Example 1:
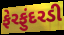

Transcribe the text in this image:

ફેરફુંદરડી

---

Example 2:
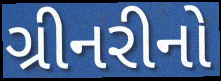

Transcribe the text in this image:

ગ્રીનરીનો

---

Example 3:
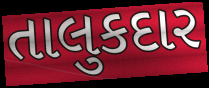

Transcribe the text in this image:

તાલુકદાર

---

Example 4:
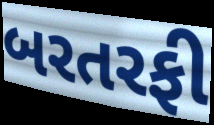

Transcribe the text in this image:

બરતરફી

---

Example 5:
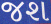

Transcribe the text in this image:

જશ